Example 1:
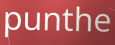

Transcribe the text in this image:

punthe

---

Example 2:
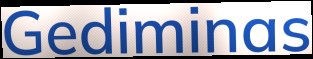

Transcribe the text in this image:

Gediminas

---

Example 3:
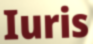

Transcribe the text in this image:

Iuris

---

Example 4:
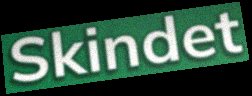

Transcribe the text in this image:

Skindet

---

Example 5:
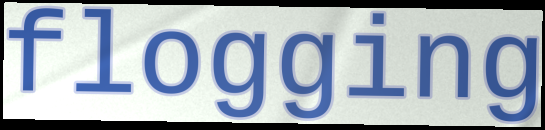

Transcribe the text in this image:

flogging